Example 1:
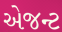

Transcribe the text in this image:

એજન્ટ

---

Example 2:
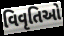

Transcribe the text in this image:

વિવૃતિઓ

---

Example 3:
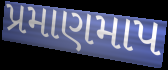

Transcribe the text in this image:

પ્રમાણમાપ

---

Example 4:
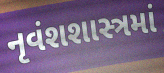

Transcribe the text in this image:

નૃવંશશાસ્ત્રમાં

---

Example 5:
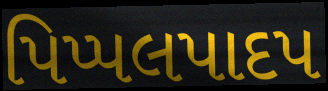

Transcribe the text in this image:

પિપ્પલપાદપ